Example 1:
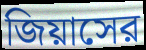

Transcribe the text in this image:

জিয়াসের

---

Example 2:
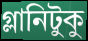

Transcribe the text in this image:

গ্লানিটুকু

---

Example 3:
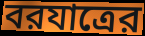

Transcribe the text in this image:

বরযাত্রের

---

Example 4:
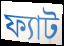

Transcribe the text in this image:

ফ্যাট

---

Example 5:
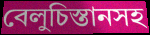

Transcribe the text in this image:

বেলুচিস্তানসহ